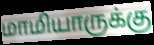
மாமியாருக்கு